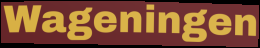
Wageningen